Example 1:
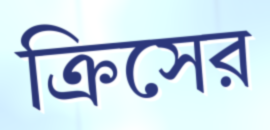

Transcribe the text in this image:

ক্রিসের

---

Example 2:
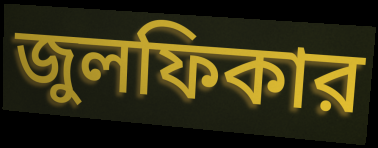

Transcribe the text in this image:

জুলফিকার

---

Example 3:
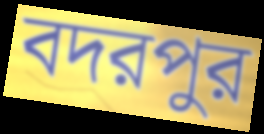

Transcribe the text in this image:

বদরপুর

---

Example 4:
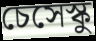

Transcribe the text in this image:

চেসেস্কু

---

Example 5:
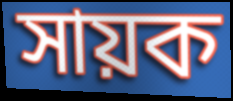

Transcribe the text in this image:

সায়ক